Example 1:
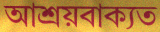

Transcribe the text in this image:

আশ্ৰয়বাক্য়ত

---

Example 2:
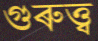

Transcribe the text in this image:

গুৰুত্ত্ব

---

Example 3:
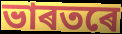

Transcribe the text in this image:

ভাৰতৰে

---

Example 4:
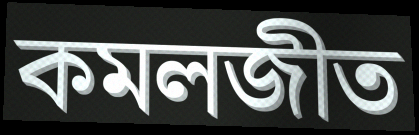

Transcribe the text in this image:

কমলজীত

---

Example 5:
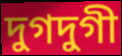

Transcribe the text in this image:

দুগদুগী